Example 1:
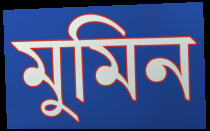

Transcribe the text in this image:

মুমিন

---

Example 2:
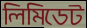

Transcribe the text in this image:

লিমিডেট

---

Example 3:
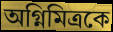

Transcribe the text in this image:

অগ্নিমিত্রকে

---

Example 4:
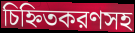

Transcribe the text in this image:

চিহ্নিতকরণসহ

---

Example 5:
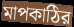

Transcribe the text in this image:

মাপকাঠির